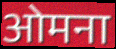
ओमना